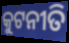
କୁଟନୀତି